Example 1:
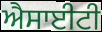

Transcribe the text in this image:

ਐਸਾਈਟੀ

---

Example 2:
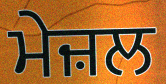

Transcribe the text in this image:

ਮੇਜ਼ਲ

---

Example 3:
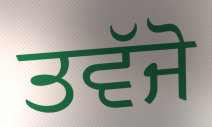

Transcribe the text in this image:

ਤਵੱਜੋ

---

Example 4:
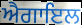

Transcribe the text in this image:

ਐਗਾਇਲ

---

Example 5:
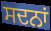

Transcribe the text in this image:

ਸਦਨਾਂ